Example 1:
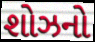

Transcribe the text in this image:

શોઝનો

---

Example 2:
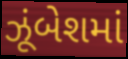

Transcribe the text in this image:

ઝૂંબેશમાં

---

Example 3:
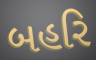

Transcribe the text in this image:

બહરિ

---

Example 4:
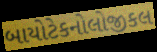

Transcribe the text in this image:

બાયોટેકનોલોજીકલ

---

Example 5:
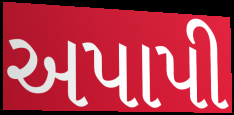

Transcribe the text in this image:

અપાપી